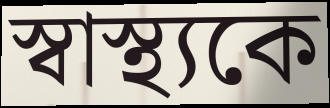
স্বাস্থ্যকে